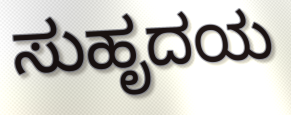
ಸುಹೃದಯ